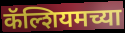
कॅल्शियमच्या